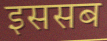
इससब